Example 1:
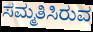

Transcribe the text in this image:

ಸಮ್ಮತಿಸಿರುವ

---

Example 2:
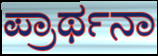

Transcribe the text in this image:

ಪ್ರಾರ್ಥನಾ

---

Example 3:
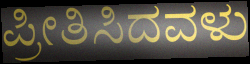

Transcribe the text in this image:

ಪ್ರೀತಿಸಿದವಳು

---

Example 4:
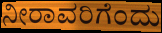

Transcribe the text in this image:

ನೀರಾವರಿಗೆಂದು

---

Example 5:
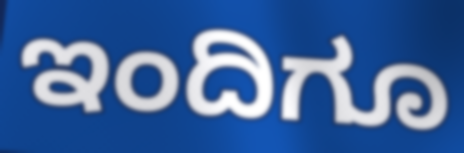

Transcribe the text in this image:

ಇಂದಿಗೂ